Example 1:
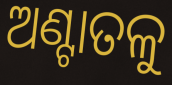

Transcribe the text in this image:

ଅଣ୍ଟାତଳୁ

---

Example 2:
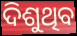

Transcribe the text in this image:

ଦିଶୁଥିବ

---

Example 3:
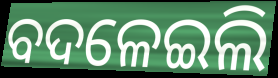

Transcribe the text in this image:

ବଦଳେଇଲି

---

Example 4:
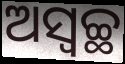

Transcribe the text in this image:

ଅସ୍ଵଚ୍ଛ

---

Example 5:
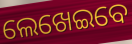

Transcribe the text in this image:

ଲେଖେଇବେ